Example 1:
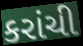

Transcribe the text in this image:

કરાંચી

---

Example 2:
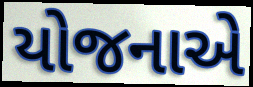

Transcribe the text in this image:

યોજનાએ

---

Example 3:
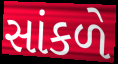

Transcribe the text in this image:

સાંકળે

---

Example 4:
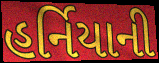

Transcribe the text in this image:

હર્નિયાની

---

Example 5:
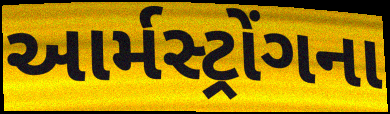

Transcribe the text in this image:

આર્મસ્ટ્રોંગના